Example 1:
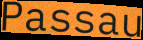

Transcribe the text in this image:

Passau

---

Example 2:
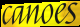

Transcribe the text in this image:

canoes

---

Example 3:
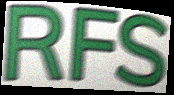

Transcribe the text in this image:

RFS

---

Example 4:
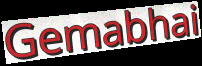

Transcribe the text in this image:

Gemabhai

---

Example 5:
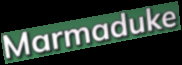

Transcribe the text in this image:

Marmaduke